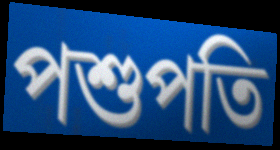
পশুপতি